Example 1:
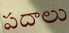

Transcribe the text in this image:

పదాలు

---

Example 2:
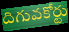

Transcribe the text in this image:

దిగువకోర్టు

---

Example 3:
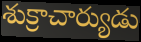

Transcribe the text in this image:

శుక్రాచార్యుడు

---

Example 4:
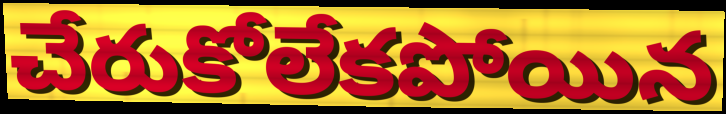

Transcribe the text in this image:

చేరుకోలేకపోయిన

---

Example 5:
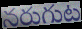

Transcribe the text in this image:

నరుగుట